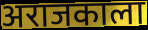
अराजकाला